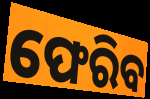
ଫେରିବ